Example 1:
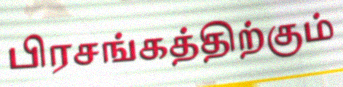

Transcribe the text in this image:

பிரசங்கத்திற்கும்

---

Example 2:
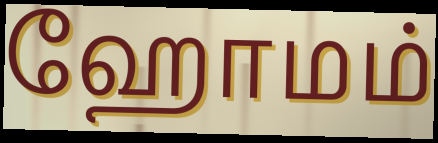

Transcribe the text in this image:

ஹோமம்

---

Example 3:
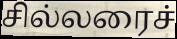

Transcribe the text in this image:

சில்லரைச்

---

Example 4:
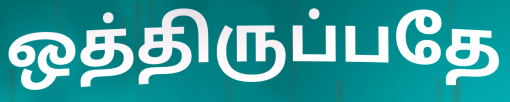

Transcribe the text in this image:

ஒத்திருப்பதே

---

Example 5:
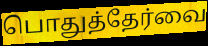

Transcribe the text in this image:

பொதுத்தேர்வை